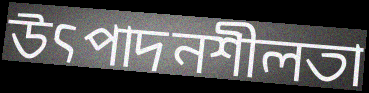
উৎপাদনশীলতা